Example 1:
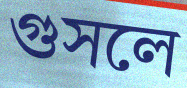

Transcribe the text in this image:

গুসলে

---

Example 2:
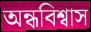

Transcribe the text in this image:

অন্ধবিশ্বাস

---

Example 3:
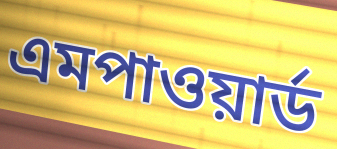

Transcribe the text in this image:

এমপাওয়ার্ড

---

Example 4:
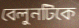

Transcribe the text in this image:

বেলুনটিকে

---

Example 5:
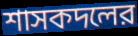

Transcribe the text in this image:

শাসকদলের